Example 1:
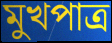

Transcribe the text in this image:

মুখপাত্র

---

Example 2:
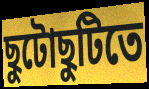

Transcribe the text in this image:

ছুটোছুটিতে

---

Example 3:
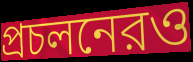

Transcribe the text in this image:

প্রচলনেরও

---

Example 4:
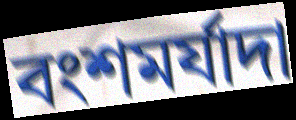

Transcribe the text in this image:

বংশমর্যাদা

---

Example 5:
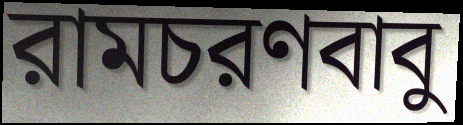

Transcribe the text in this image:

রামচরণবাবু